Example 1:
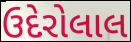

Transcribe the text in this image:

ઉદેરોલાલ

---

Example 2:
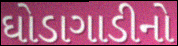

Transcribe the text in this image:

ઘોડાગાડીનો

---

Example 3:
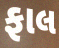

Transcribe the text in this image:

ફાલ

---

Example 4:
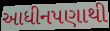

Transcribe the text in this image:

આધીનપણાથી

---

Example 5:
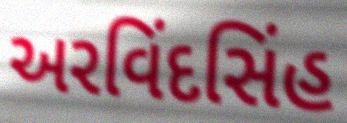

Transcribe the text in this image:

અરવિંદસિંહ